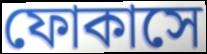
ফোকাসে